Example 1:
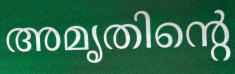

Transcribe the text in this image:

അമൃതിന്റെ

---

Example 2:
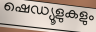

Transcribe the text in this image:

ഷെഡ്യൂളുകളും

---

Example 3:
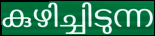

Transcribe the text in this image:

കുഴിച്ചിടുന്ന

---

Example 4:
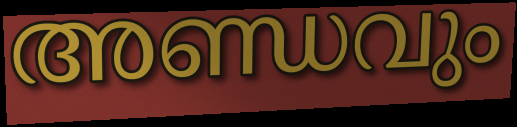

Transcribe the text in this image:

അണ്ഡവും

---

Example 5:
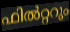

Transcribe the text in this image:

ഫിൽറ്ററും